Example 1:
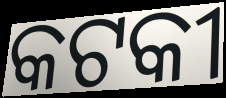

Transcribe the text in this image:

କଟକୀ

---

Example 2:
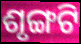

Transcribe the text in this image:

ଶୃଙ୍ଗଟି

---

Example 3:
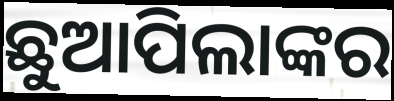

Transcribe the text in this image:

ଛୁଆପିଲାଙ୍କର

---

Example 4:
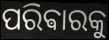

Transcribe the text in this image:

ପରିଵାରକୁ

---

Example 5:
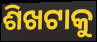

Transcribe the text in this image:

ଶିଖଟାକୁ